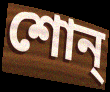
শোন্